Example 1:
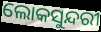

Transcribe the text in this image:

ଲୋକସୁନ୍ଦରୀ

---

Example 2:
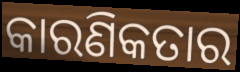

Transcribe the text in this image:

କାରଣିକତାର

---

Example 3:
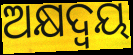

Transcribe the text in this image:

ଅକ୍ଷଦ୍ବୟ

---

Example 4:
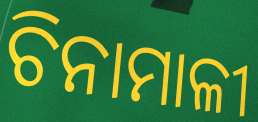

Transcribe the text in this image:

ଚିନାମାଳୀ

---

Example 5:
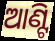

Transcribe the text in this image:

ଆଣ୍ଟି